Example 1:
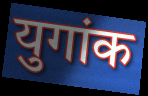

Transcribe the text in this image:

युगांक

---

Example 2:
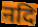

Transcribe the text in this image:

नदि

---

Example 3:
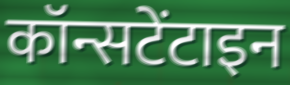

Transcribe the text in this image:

कॉन्सटेंटाइन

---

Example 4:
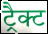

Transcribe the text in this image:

ट्रैक्ट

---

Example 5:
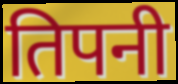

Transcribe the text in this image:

तिपनी